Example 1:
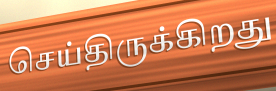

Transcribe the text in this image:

செய்திருக்கிறது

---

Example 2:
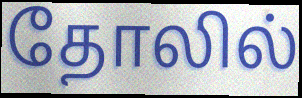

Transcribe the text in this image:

தோலில்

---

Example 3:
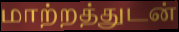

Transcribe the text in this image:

மாற்றத்துடன்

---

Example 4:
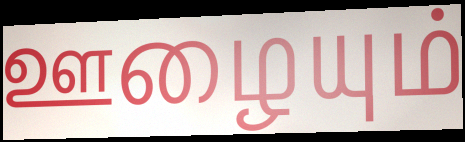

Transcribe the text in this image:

ஊழையும்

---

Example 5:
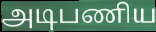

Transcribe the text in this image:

அடிபணிய